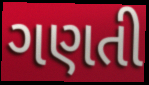
ગણતી